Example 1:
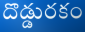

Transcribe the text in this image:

దొడ్డురకం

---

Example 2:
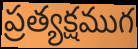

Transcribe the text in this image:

ప్రత్యక్షముగ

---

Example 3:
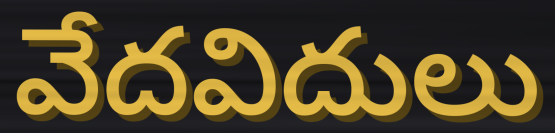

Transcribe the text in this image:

వేదవిదులు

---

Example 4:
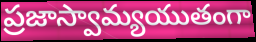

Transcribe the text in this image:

ప్రజాస్వామ్యయుతంగా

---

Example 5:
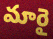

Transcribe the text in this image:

మారై